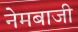
नेमबाजी